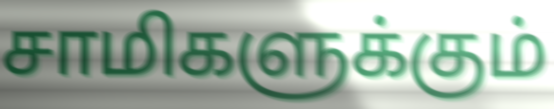
சாமிகளுக்கும்